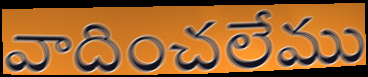
వాదించలేము